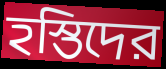
হস্তিদের